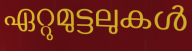
ഏറ്റുമുട്ടലുകൾ